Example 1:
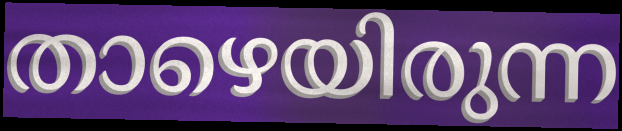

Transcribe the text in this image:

താഴെയിരുന്ന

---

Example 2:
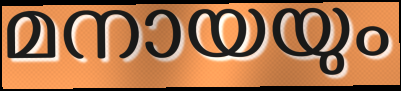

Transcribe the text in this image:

മനായയും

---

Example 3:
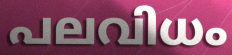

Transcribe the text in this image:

പലവിധം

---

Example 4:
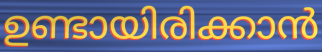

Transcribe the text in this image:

ഉണ്ടായിരിക്കാൻ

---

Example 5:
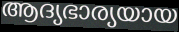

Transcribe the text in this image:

ആദ്യഭാര്യയായ